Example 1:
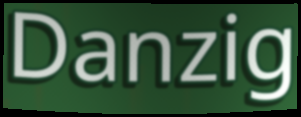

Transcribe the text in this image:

Danzig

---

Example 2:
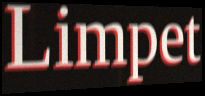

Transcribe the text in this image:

Limpet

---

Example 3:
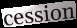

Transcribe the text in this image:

cession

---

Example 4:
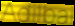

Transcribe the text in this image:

Adilbai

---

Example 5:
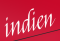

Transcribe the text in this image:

indien